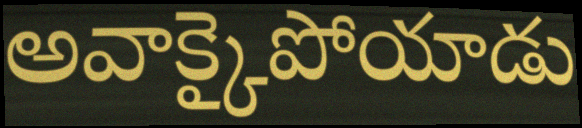
అవాక్కైపోయాడు